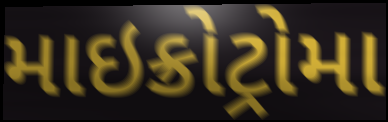
માઇક્રોટ્રોમા